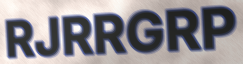
RJRRGRP